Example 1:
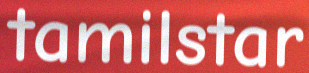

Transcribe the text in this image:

tamilstar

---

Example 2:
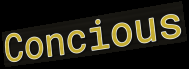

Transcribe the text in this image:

Concious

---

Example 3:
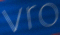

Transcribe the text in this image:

vro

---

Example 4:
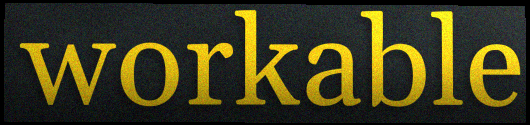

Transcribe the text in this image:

workable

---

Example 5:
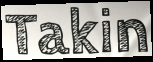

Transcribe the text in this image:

Takin